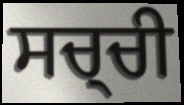
ਸਚ੍ਚੀ